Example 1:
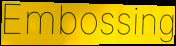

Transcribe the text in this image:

Embossing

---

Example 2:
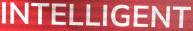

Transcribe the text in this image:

INTELLIGENT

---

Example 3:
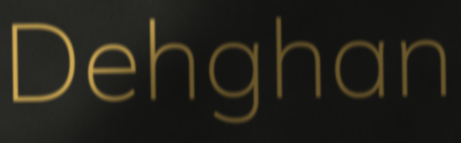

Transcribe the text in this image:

Dehghan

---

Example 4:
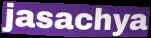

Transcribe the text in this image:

jasachya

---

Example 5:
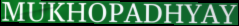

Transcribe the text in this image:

MUKHOPADHYAY